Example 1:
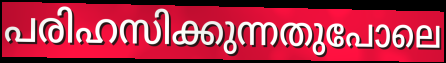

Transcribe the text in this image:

പരിഹസിക്കുന്നതുപോലെ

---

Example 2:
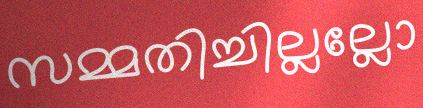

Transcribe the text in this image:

സമ്മതിച്ചില്ലല്ലോ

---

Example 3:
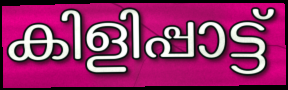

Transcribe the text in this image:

കിളിപ്പാട്ട്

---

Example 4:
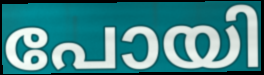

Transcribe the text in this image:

പോയി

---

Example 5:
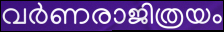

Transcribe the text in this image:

വർണരാജിത്രയം